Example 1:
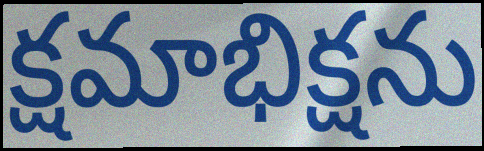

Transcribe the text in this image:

క్షమాభిక్షను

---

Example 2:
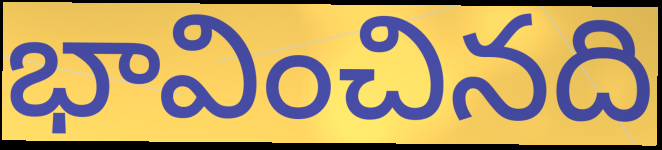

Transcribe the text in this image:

భావించినది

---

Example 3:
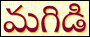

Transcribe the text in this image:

మగిడి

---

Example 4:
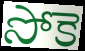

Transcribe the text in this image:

సోకె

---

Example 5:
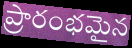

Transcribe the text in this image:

ప్రారంభమైన